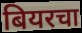
बियरचा